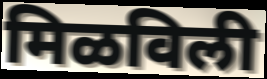
मिळविली